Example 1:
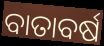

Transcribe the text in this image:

ବାତାବର୍ଷ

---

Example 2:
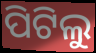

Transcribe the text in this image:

ପିଟିଲୁ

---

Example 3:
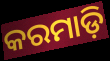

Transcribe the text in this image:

କରମାଡ଼ି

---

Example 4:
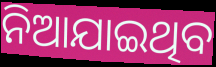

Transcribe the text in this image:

ନିଆଯାଇଥିବ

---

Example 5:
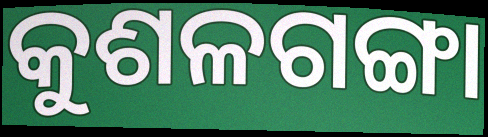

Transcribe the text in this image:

କୁଶଳଗଙ୍ଗା